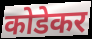
कोडेकर